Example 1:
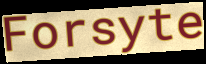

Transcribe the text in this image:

Forsyte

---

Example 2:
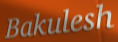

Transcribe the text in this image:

Bakulesh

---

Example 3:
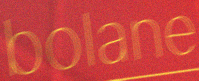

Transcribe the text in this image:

bolane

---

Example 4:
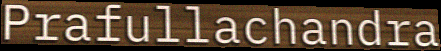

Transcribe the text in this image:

Prafullachandra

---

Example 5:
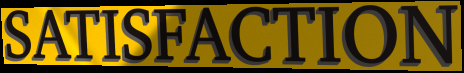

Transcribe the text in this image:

SATISFACTION